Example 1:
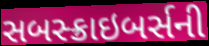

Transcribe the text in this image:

સબસ્ક્રાઇબર્સની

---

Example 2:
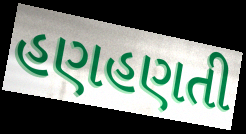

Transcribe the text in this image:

હણહણતી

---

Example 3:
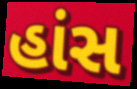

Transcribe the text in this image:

હાંસ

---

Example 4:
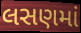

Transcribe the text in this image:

લસણમાં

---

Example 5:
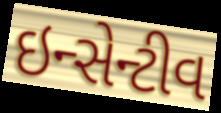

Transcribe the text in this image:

ઇન્સેન્ટીવ